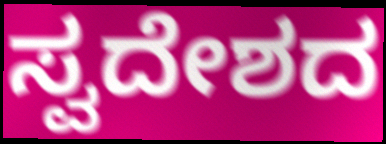
ಸ್ವದೇಶದ